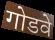
गोडवे